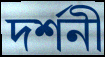
দৰ্শনী